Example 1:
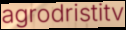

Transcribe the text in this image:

agrodristitv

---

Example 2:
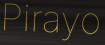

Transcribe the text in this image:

Pirayo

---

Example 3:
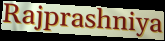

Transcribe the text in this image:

Rajprashniya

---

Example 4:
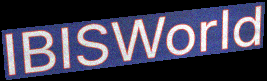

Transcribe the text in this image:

IBISWorld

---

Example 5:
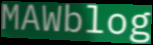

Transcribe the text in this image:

MAWblog